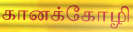
கானக்கோழி